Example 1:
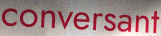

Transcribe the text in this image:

conversant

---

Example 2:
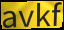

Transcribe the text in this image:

avkf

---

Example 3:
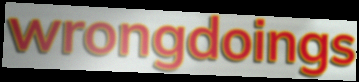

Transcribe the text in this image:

wrongdoings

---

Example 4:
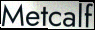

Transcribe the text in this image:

Metcalf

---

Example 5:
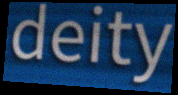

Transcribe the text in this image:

deity